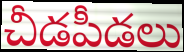
చీడపీడలు